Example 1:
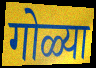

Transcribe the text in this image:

गोळ्या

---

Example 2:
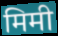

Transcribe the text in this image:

मिमी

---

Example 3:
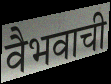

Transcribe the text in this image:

वैभवाची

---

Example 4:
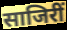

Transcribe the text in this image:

साजिरीं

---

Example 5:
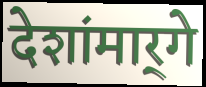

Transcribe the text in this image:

देशांमार्गे